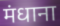
मंधाना